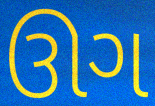
ઊગ